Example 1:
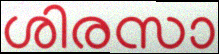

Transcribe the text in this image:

ശിരസാ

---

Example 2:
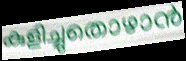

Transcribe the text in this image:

കുളിച്ചുതൊഴാൻ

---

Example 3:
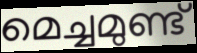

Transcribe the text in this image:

മെച്ചമുണ്ട്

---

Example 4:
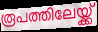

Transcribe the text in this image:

രൂപത്തിലേയ്ക്ക്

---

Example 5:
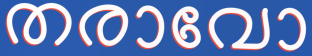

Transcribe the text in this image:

തരാവോ